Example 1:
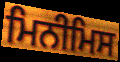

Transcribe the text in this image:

ਮਿਨੀਮਿਸ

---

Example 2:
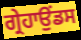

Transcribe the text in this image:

ਗ੍ਰੇਹਾਉਂਡਸ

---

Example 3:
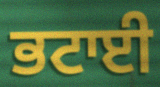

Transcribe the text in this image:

ਭਟਾਈ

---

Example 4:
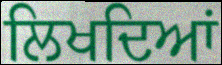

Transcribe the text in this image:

ਲਿਖਦਿਆਂ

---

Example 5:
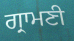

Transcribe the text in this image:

ਗ੍ਰਾਮਣੀ